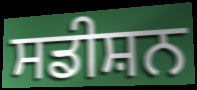
ਸਡੀਸ਼ਨ